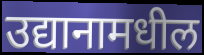
उद्यानामधील